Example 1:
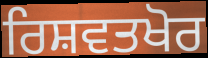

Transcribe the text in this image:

ਰਿਸ਼ਵਤਖੋਰ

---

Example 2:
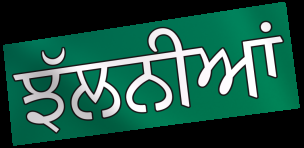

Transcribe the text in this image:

ਝੱਲਨੀਆਂ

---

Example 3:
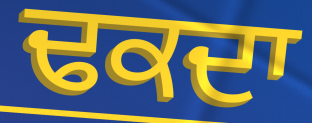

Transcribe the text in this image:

ਢਕਦਾ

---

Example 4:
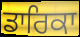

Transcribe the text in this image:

ਡਾਰਿਕਾ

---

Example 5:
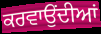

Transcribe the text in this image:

ਕਰਵਾਉਂਦੀਆਂ